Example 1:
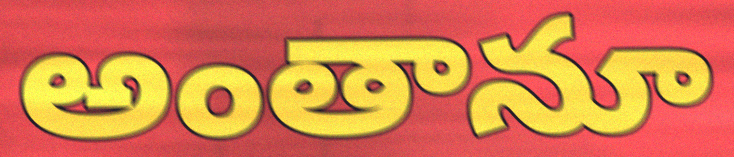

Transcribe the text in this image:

అంతానూ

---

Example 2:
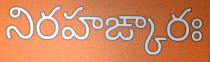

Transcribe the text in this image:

నిరహఙ్కారః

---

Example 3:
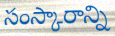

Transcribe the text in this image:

సంస్కారాన్ని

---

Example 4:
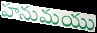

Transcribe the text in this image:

హనుమయు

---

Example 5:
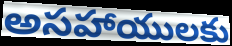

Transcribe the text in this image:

అసహాయులకు